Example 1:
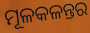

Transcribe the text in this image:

ମୂଳକଳନ୍ତର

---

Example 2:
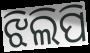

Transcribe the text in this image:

ଝିଲିପି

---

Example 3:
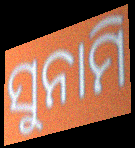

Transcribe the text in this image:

ସୁନାମି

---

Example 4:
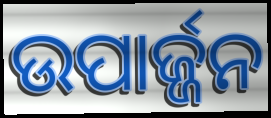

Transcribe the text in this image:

ଉପାର୍ଜ୍ଜନ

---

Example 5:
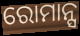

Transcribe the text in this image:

ରୋମାନ୍ସ